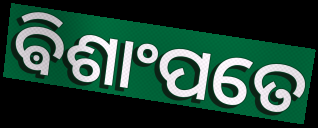
ଵିଶାଂପତେ